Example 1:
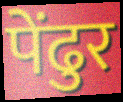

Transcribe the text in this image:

पेंढुर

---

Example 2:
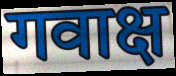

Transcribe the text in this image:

गवाक्ष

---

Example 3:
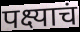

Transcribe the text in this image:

पक्ष्याचं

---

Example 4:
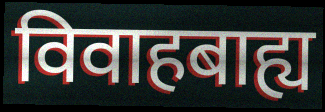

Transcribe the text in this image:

विवाहबाह्य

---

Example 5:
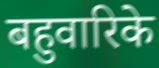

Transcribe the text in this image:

बहुवारिके